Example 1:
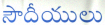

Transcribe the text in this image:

సౌదీయులు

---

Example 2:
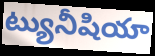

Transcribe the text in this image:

ట్యునీషియా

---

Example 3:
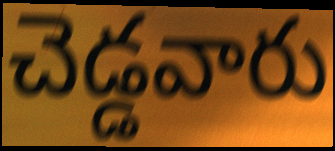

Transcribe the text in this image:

చెడ్డవారు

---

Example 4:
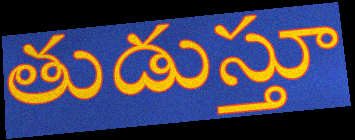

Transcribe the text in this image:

తుడుస్తూ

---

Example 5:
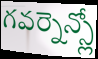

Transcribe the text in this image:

గవర్నెన్స్లో